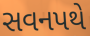
સવનપથે